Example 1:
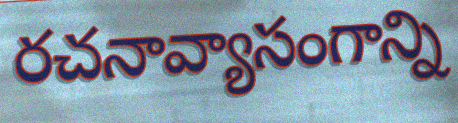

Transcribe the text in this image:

రచనావ్యాసంగాన్ని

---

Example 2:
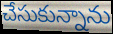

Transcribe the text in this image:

చేసుకున్నాను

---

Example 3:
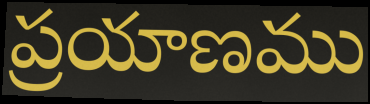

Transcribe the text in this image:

ప్రయాణము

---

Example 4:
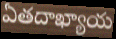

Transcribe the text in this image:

ఏతదాఖ్యాయ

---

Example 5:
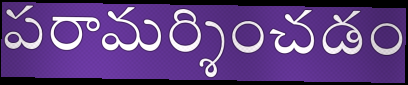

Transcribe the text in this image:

పరామర్శించడం